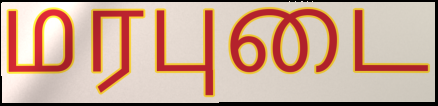
மரபுடை